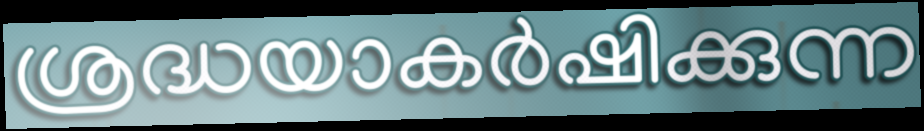
ശ്രദ്ധയാകർഷിക്കുന്ന